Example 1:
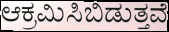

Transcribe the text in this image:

ಆಕ್ರಮಿಸಿಬಿಡುತ್ತವೆ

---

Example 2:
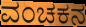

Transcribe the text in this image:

ವಂಚಕನ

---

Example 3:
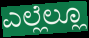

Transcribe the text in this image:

ಎಲ್ಲೆಲ್ಲೂ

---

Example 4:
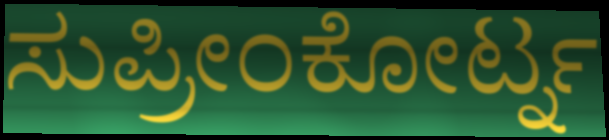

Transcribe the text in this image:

ಸುಪ್ರೀಂಕೋರ್ಟ್ನ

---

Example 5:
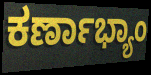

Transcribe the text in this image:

ಕರ್ಣಾಭ್ಯಾಂ